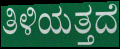
ತಿಳಿಯತ್ತದೆ